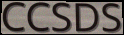
CCSDS